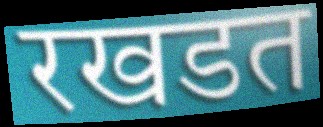
रखडत